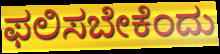
ಫಲಿಸಬೇಕೆಂದು